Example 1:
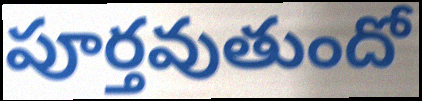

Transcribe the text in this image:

పూర్తవుతుందో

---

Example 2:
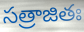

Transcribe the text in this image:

సత్రాజితః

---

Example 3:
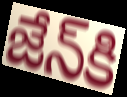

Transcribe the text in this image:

జేన్‌కి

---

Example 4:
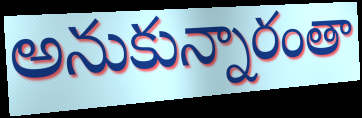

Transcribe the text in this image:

అనుకున్నారంతా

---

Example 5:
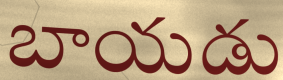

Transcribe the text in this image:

బాయడు